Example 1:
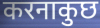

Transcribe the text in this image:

करनाकुछ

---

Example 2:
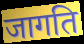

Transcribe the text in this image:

जागति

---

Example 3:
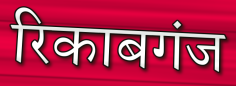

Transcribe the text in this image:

रिकाबगंज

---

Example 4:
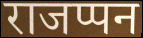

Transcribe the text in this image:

राजप्पन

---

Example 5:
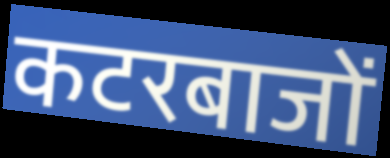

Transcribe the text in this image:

कटरबाजों